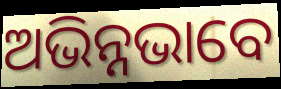
ଅଭିନ୍ନଭାବେ